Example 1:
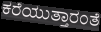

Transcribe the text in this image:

ಕರೆಯುತ್ತಾರಂತೆ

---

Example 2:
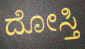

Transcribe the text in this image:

ದೋಸ್ತಿ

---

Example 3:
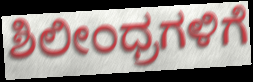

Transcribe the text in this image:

ಶಿಲೀಂಧ್ರಗಳಿಗೆ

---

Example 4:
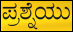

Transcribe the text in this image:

ಪ್ರಶ್ನೆಯು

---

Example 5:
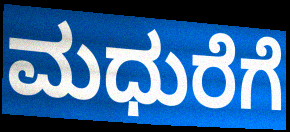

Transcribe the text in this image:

ಮಧುರೆಗೆ